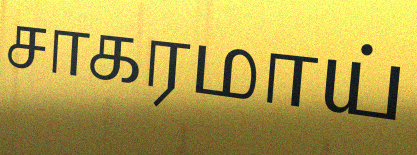
சாகரமாய்